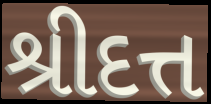
શ્રીદત્ત